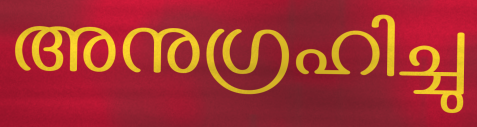
അനുഗ്രഹിച്ചു